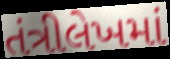
તંત્રીલેખમાં